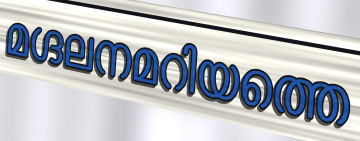
മഗ്ദലനമറിയത്തെ